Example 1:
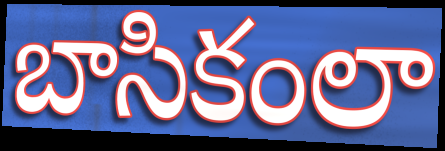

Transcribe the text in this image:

బాసికంలా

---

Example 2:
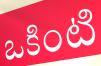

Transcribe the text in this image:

ఒకింటి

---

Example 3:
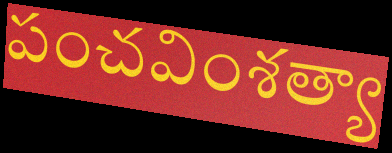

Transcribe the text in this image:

పంచవింశత్యా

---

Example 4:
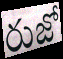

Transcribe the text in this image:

రుజో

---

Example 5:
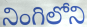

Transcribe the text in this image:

నింగిలోని